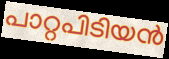
പാറ്റപിടിയൻ